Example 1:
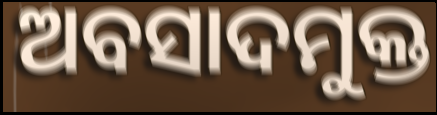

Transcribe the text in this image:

ଅବସାଦମୁକ୍ତ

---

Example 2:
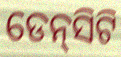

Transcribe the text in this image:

ଡେନ୍‌ସିଟି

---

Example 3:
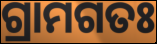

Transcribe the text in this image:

ଗ୍ରାମଗତଃ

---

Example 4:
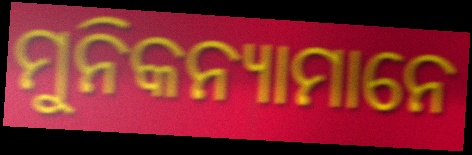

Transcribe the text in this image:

ମୁନିକନ୍ୟାମାନେ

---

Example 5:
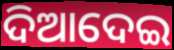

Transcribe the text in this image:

ଦିଆଦେଇ